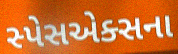
સ્પેસએક્સના